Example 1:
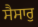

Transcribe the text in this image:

ਸੈਸਾਰੁ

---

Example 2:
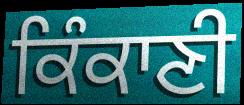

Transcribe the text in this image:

ਕਿੰਕਾਣੀ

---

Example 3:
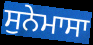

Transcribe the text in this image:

ਸੁਨੇਮਾਸਾ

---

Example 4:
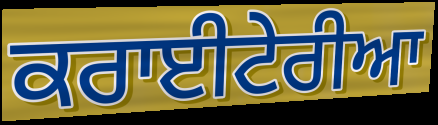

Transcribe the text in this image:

ਕਰਾਈਟੇਰੀਆ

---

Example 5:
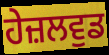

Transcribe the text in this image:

ਹੇਜ਼ਲਵੁਡ